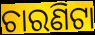
ଚାରଣିଟା